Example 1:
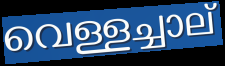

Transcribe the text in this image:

വെള്ളച്ചാല്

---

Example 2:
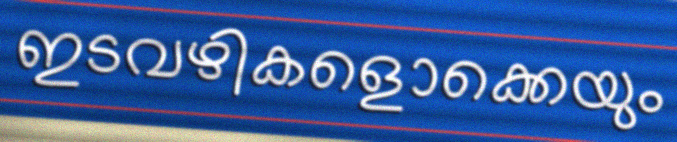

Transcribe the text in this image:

ഇടവഴികളൊക്കെയും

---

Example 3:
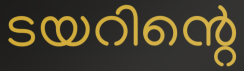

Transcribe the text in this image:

ടയറിന്റെ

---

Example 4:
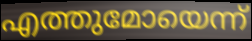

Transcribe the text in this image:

എത്തുമോയെന്ന്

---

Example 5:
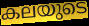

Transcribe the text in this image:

കലയുടെ